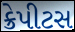
ક્રેપીટસ